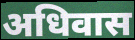
अधिवास